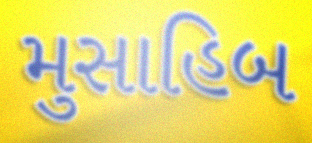
મુસાહિબ